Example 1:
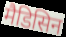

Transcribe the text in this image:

मैडिसिन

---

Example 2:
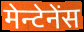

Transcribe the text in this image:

मेन्टेनेंस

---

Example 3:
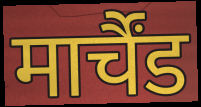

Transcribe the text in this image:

मार्चैंड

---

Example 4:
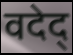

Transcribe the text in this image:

वदेद्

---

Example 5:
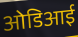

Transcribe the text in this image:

ओडिआई